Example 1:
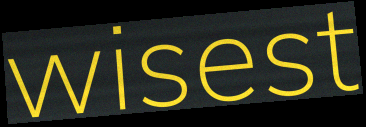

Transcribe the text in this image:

wisest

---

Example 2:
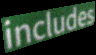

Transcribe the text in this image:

includes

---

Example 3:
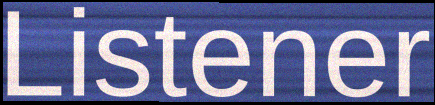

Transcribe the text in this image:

Listener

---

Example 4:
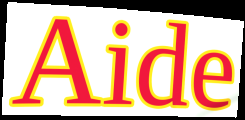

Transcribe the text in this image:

Aide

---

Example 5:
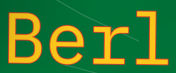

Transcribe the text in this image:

Berl